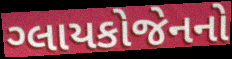
ગ્લાયકોજેનનો